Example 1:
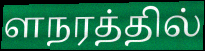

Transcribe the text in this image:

ளநரத்தில்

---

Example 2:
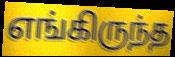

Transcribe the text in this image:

எங்கிருந்த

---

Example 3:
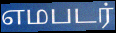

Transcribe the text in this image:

எமபடர்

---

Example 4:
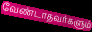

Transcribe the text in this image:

வேண்டாதவர்களும்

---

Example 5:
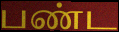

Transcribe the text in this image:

பண்ட